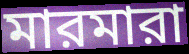
মারমারা